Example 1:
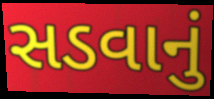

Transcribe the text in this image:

સડવાનું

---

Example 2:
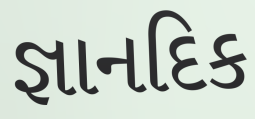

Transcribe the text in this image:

જ્ઞાનદિક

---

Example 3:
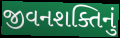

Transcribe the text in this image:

જીવનશક્તિનું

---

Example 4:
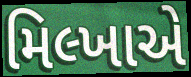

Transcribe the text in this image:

મિલ્ખાએ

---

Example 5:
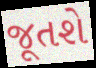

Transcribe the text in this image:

જૂતશે